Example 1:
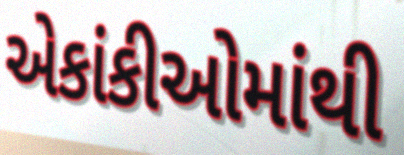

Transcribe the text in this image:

એકાંકીઓમાંથી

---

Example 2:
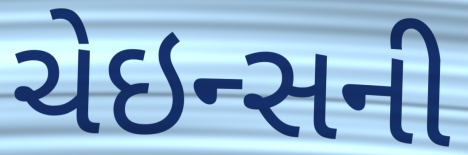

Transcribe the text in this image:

ચેઇન્સની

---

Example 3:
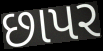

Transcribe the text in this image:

છાપર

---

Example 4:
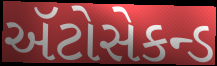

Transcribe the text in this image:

ઍટોસેકન્ડ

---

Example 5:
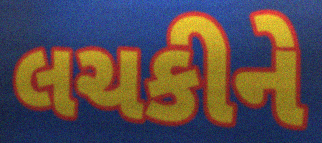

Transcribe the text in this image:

લચકીને